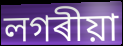
লগৰীয়া